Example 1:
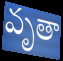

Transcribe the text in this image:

వృతా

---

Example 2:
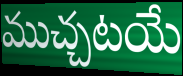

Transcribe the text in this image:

ముచ్చటయే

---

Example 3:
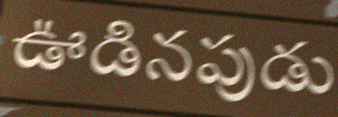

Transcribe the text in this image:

ఊడినపుడు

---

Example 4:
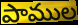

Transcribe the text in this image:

పాముల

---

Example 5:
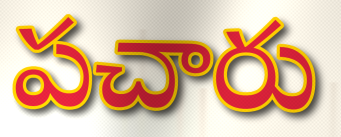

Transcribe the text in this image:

పచారు